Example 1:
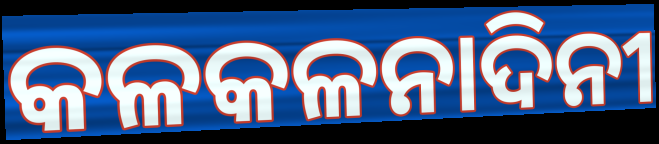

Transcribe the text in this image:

କଳକଳନାଦିନୀ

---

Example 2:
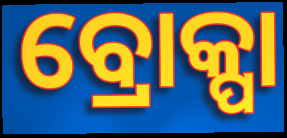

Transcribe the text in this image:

ବ୍ରୋକ୍ପା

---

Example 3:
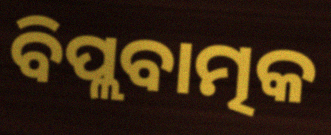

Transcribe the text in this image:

ବିପ୍ଲବାତ୍ମକ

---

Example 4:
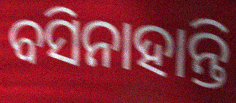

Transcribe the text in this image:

ବସିନାହାନ୍ତି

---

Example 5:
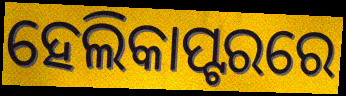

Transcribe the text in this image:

ହେଲିକାପ୍ଟରରେ